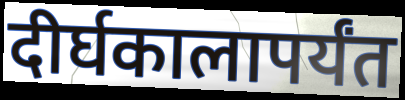
दीर्घकालापर्यंत